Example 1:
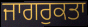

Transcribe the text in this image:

ਜਾਗਰੁਕਤਾ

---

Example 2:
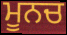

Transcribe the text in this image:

ਮੂਨਚ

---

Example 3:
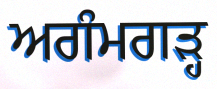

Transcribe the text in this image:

ਅਗੰਮਗੜ੍ਹ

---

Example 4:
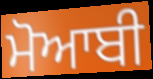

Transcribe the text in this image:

ਮੋਆਬੀ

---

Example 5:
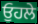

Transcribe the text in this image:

ਓੁਹਲੇ